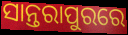
ସାନ୍ତରାପୁରରେ